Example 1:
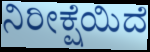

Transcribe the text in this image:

ನಿರೀಕ್ಷೆಯಿದೆ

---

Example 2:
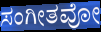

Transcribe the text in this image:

ಸಂಗೀತವೋ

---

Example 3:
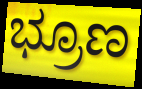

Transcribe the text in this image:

ಭ್ರೂಣ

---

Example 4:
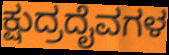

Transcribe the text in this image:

ಕ್ಷುದ್ರದೈವಗಳ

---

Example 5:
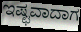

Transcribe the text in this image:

ಇಷ್ಟವಾದಾಗ